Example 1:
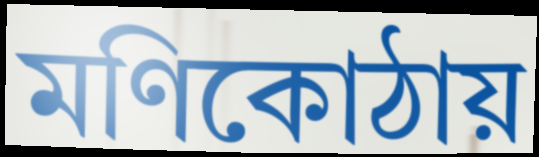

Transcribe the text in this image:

মণিকোঠায়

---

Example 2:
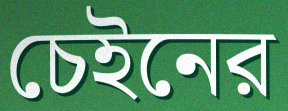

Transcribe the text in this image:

চেইনের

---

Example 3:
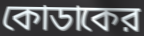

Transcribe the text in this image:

কোডাকের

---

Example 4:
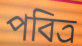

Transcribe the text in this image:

পবিত্র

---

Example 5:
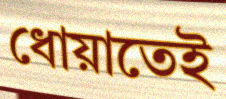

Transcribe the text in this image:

ধোয়াতেই